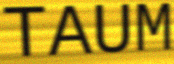
TAUM